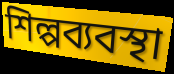
শিল্পব্যবস্থা